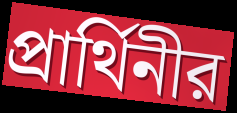
প্রার্থিনীর